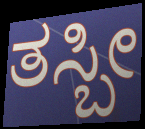
ತಸ್ಬೀ